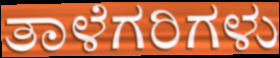
ತಾಳೆಗರಿಗಳು